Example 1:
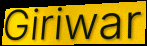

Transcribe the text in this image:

Giriwar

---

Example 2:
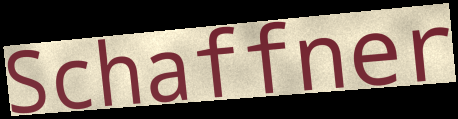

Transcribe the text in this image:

Schaffner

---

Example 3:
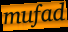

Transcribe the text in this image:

mufad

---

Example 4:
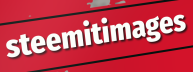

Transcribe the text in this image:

steemitimages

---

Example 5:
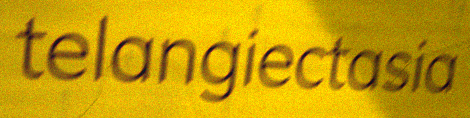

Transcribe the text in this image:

telangiectasia